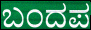
ಬಂದಪ